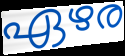
ഏഴര